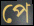
পে